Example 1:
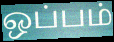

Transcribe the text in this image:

ஒப்பம்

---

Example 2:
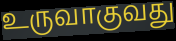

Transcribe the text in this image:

உருவாகுவது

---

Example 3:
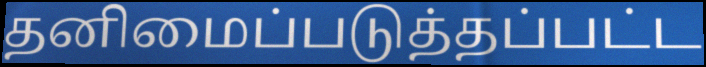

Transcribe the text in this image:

தனிமைப்படுத்தப்பட்ட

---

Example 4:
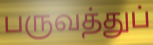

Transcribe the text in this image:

பருவத்துப்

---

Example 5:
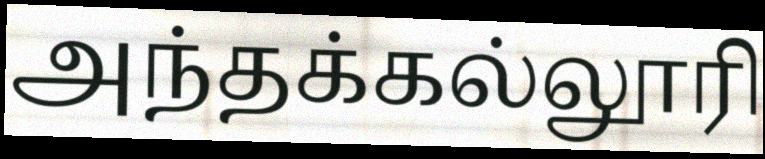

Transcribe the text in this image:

அந்தக்கல்லூரி